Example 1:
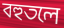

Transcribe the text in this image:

বহুতলে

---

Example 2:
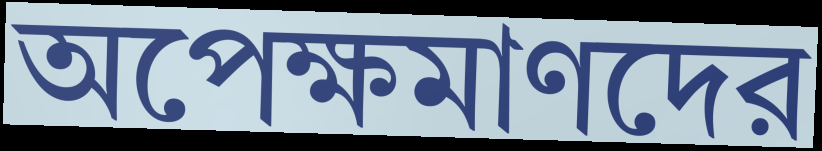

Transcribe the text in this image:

অপেক্ষমাণদের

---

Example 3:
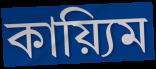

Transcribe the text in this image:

কায়্যিম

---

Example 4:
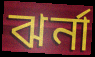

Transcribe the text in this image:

ঝর্না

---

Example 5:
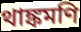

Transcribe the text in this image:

থাঙ্কমণি